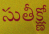
సుతీక్ష్ణో